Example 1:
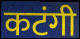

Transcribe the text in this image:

कटंगी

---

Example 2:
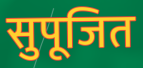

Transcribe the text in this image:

सुपूजित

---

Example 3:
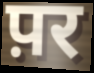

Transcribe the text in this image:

प़र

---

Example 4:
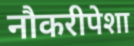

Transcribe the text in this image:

नौकरीपेशा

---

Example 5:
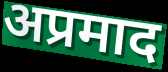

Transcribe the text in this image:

अप्रमाद